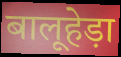
बालूहेड़ा